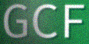
GCF